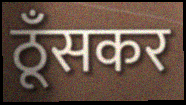
ठूँसकर